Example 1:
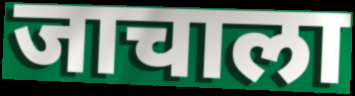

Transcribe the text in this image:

जाचाला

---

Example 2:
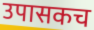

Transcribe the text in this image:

उपासकच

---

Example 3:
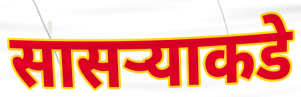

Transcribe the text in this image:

सासऱ्याकडे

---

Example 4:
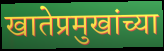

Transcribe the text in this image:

खातेप्रमुखांच्या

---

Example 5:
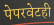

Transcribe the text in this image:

पेपरवेटही